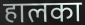
हालका